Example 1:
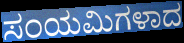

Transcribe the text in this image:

ಸಂಯಮಿಗಳಾದ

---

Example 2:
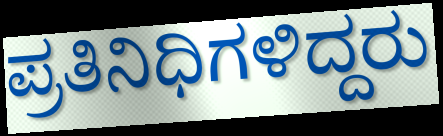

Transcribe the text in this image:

ಪ್ರತಿನಿಧಿಗಳಿದ್ದರು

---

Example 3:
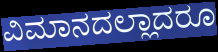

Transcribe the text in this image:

ವಿಮಾನದಲ್ಲಾದರೂ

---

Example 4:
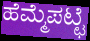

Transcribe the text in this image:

ಹೆಮ್ಮೆಪಟ್ಟೆ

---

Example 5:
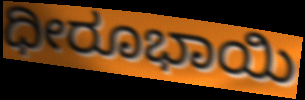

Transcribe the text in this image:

ಧೀರೂಭಾಯಿ